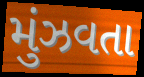
મુંઝવતા